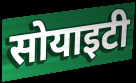
सोयाइटी